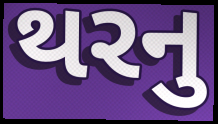
થરનુ